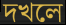
দখলে